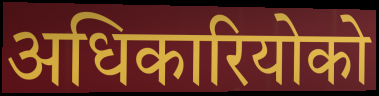
अधिकारियोको